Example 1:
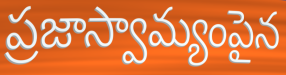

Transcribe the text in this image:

ప్రజాస్వామ్యంపైన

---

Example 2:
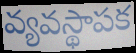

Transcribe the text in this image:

వ్యవస్థాపక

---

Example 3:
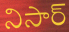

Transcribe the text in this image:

నిసార్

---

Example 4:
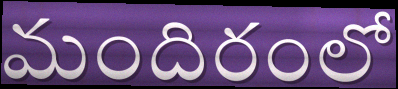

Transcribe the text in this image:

మందిరంలో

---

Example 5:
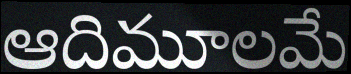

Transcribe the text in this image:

ఆదిమూలమే